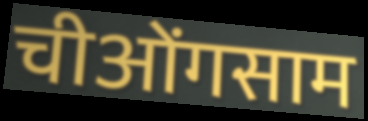
चीओंगसाम